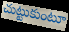
చుట్టుకుంటూ